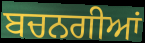
ਬਚਨਗੀਆਂ